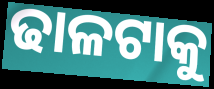
ଢାଳଟାକୁ